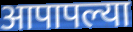
आपापल्या